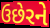
ઉછેરને